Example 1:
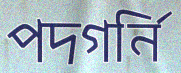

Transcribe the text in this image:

পদগর্নি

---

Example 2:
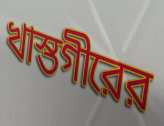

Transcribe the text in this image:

খাস্তগীরের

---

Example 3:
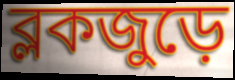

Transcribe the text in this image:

ব্লকজুড়ে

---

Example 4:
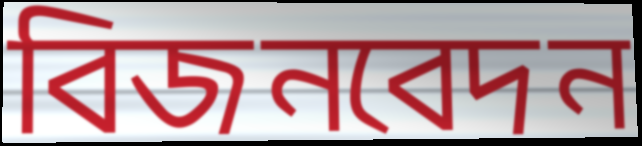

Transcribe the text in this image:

বিজনবেদন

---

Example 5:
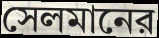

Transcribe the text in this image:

সেলমানের